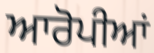
ਆਰੋਪੀਆਂ